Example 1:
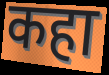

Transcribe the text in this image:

कहा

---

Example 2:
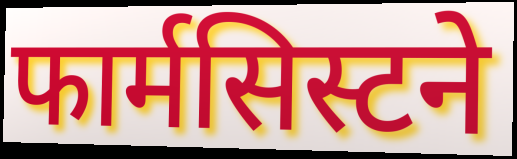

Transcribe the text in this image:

फार्मसिस्टने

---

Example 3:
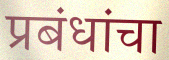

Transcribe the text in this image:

प्रबंधांचा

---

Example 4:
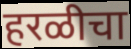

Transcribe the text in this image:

हरळीचा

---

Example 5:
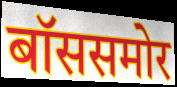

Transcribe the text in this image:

बॉससमोर